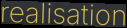
realisation